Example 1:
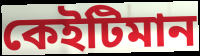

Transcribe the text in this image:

কেইটিমান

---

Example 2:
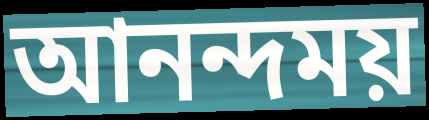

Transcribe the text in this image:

আনন্দময়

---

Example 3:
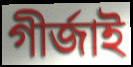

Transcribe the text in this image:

গীৰ্জাই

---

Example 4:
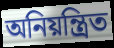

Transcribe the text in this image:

অনিয়ন্ত্ৰিত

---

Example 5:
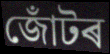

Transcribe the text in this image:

জোঁটৰ